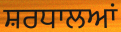
ਸ਼ਰਧਾਲਆਂ